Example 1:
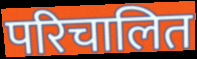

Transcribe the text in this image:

परिचालित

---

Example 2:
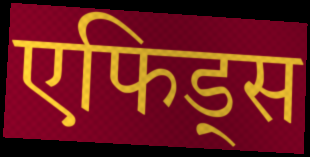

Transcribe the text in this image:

एफिड्स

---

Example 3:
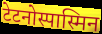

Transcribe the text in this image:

टेटनोस्पास्मिन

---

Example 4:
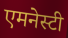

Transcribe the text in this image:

एमनेस्टी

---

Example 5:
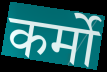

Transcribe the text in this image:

कर्मो